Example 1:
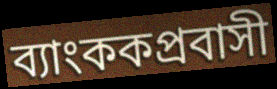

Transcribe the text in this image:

ব্যাংককপ্রবাসী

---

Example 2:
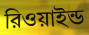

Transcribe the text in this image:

রিওয়াইন্ড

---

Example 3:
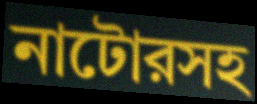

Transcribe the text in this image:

নাটোরসহ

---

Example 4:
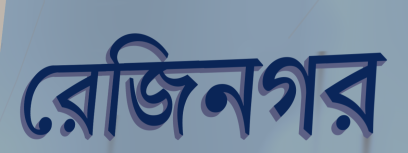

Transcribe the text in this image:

রেজিনগর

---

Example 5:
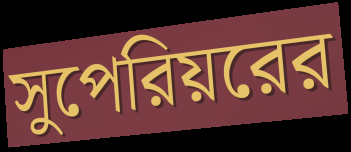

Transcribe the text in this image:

সুপেরিয়রের